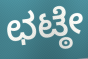
ಛಟ್ಠೇ